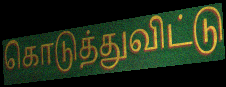
கொடுத்துவிட்டு